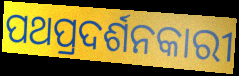
ପଥପ୍ରଦର୍ଶନକାରୀ